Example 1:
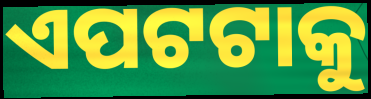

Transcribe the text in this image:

ଏପଟଟାକୁ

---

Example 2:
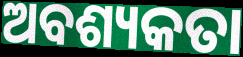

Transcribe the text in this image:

ଅବଶ୍ୟକତା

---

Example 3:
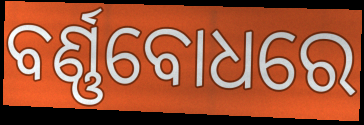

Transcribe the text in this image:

ବର୍ଣ୍ଣବୋଧରେ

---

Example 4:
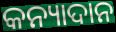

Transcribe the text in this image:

କନ୍ୟାଦାନ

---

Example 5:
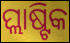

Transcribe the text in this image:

ପ୍ଲାଷ୍ଟିକ